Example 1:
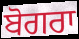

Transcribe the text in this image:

ਬੋਗਰਾ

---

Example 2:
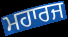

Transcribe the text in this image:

ਮਹਾਰਜ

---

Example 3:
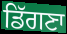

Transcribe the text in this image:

ਡਿੱਗਣਾ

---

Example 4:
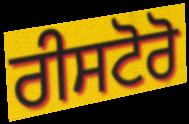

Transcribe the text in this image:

ਰੀਸਟੋਰੋ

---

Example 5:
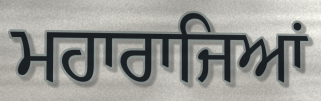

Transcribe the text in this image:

ਮਹਾਰਾਜਿਆਂ